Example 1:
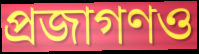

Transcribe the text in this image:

প্রজাগণও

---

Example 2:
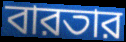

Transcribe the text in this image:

বারতার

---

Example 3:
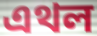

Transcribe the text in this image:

এথল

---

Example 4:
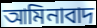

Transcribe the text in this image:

আমিনাবাদ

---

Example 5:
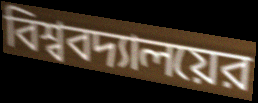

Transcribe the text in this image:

বিশ্ববদ্যালয়ের